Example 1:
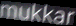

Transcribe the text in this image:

mukkar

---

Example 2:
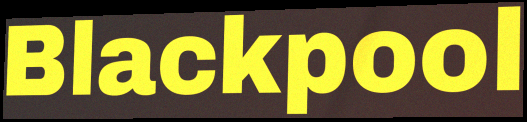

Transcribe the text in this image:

Blackpool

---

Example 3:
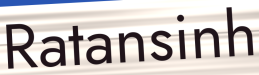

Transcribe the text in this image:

Ratansinh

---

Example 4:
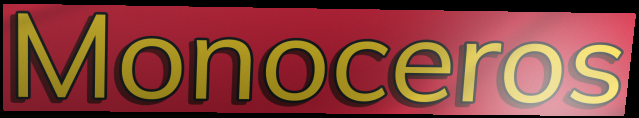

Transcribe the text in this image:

Monoceros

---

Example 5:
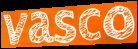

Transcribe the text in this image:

vasco